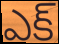
ఎక్